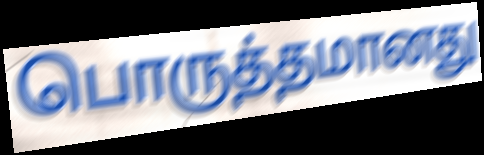
பொருத்தமானது